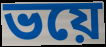
ভয়ে